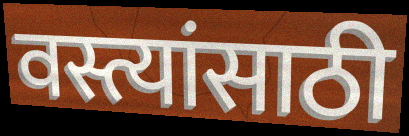
वस्त्यांसाठी